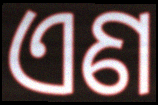
ଏଣ